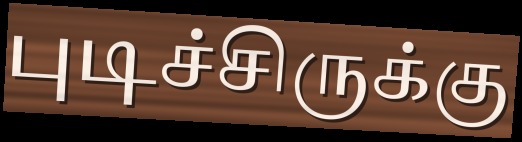
புடிச்சிருக்கு